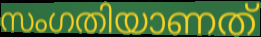
സംഗതിയാണത്